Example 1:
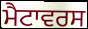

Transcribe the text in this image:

ਮੈਟਾਵਰਸ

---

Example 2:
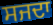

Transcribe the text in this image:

ਸਜਦਾ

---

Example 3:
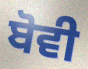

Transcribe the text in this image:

ਬੋਵੀ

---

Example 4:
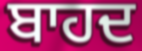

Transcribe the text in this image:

ਬਾਹਦ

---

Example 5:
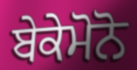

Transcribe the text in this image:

ਬੇਕੇਮੋਨੋ